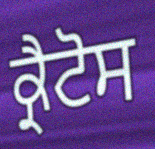
ਕ੍ਰੈਟੋਸ